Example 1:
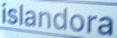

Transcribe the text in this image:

islandora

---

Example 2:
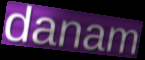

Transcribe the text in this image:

danam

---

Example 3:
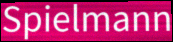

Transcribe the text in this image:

Spielmann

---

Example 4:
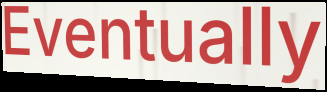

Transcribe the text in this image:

Eventually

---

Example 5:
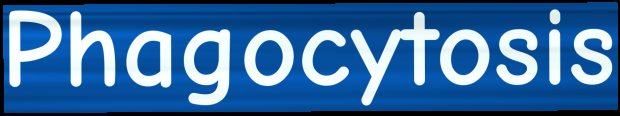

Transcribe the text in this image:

Phagocytosis